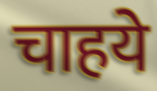
चाहये